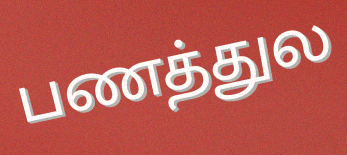
பணத்துல